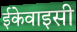
ईकेवाइसी